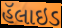
હૅલાઇડ